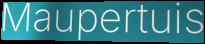
Maupertuis